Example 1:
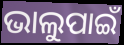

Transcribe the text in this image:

ଭାଲୁପାଇଁ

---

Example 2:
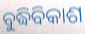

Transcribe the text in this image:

ବୁଦ୍ଧିବିକାଶ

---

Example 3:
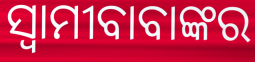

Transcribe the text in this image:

ସ୍ଵାମୀବାବାଙ୍କର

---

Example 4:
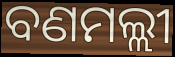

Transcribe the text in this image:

ବଣମଲ୍ଲୀ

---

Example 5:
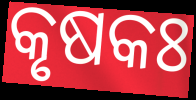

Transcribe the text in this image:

କୃଷକଃ